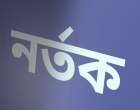
নৰ্তক